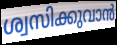
ശ്വസിക്കുവാൻ